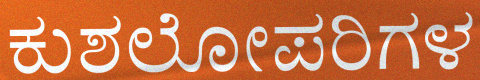
ಕುಶಲೋಪರಿಗಳ